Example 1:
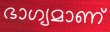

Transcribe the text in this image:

ഭാഗ്യമാണ്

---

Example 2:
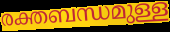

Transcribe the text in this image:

രക്തബന്ധമുള്ള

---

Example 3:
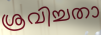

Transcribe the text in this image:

ശ്രവിച്ചതാ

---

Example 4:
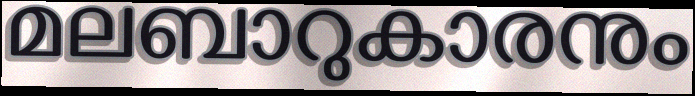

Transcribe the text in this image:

മലബാറുകാരനും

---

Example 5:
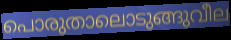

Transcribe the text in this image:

പൊരുതാലൊടുങ്ങുവീല